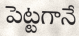
పెట్టగానే